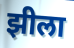
झीला